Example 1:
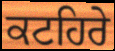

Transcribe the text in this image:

ਕਟਹਿਰੇ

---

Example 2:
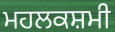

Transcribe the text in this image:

ਮਹਲਕਸ਼ਮੀ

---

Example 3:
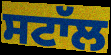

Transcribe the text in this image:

ਸਟਾੱਲ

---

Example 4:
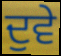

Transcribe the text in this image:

ਦੁਵੇ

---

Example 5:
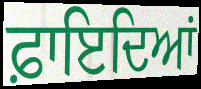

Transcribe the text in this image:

ਫ਼ਾਇਦਿਆਂ